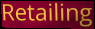
Retailing